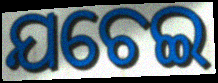
ଯଚେଇ